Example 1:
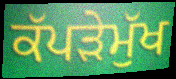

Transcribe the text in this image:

ਕੱਪੜੇਮੁੱਖ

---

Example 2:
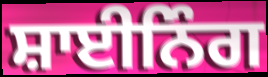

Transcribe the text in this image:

ਸ਼ਾਈਨਿੰਗ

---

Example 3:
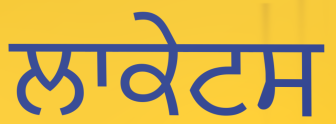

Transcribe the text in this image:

ਲਾਕੇਟਸ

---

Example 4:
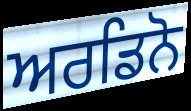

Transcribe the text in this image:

ਅਰਡਿਨੋ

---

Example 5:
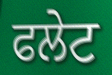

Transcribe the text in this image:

ਫਲੇਟ